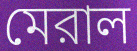
মেরাল